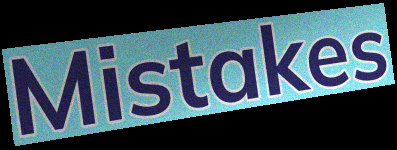
Mistakes